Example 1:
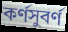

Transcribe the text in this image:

কর্ণসুবর্ণ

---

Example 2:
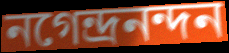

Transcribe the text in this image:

নগেন্দ্রনন্দন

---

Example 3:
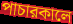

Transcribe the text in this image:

পাচারকালে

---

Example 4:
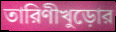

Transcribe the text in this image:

তারিণীখুড়োর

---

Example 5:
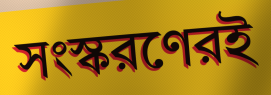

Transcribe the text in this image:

সংস্করণেরই